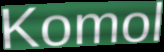
Komol